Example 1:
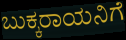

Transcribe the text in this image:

ಬುಕ್ಕರಾಯನಿಗೆ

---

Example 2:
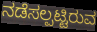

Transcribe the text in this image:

ನಡೆಸಲ್ಪಟ್ಟಿರುವ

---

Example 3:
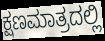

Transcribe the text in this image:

ಕ್ಷಣಮಾತ್ರದಲ್ಲಿ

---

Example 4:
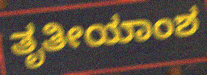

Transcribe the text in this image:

ತೃತೀಯಾಂಶ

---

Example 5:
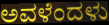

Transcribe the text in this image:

ಅವಳೆಂದಳು